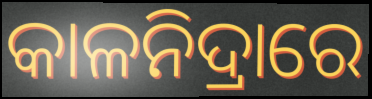
କାଳନିଦ୍ରାରେ